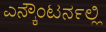
ಎನ್ಕೌಂಟರ್ನಲ್ಲಿ